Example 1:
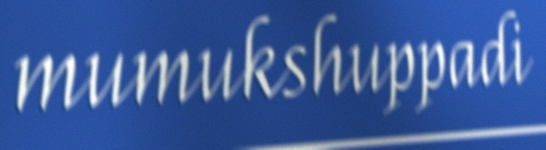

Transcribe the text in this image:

mumukshuppadi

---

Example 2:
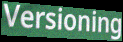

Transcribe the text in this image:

Versioning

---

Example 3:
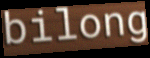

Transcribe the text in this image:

bilong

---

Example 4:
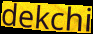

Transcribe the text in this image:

dekchi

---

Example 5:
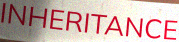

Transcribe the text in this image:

INHERITANCE